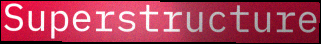
Superstructure